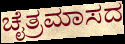
ಚೈತ್ರಮಾಸದ